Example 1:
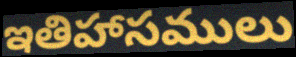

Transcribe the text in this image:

ఇతిహాసములు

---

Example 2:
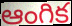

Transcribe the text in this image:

ఆంగిక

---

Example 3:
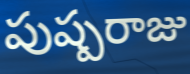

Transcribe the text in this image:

పుష్పరాజు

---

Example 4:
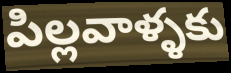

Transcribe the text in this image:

పిల్లవాళ్ళకు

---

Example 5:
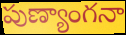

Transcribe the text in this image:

పుణ్యాంగనా